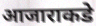
आजाराकडे